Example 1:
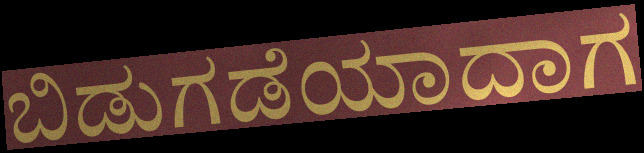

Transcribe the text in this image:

ಬಿಡುಗಡೆಯಾದಾಗ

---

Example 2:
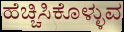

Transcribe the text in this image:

ಹೆಚ್ಚಿಸಿಕೊಳ್ಳುವ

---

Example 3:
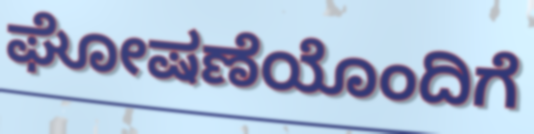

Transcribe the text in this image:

ಘೋಷಣೆಯೊಂದಿಗೆ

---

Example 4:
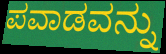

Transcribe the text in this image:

ಪವಾಡವನ್ನು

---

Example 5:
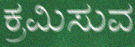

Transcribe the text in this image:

ಕ್ರಮಿಸುವ